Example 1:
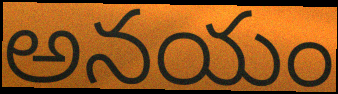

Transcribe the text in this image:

అనయం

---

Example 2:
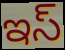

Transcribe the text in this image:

ఇస్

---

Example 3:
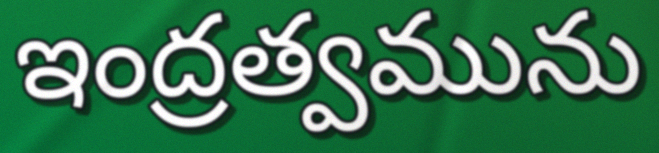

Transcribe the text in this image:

ఇంద్రత్వమును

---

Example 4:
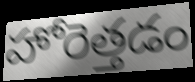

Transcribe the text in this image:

హోరెత్తడం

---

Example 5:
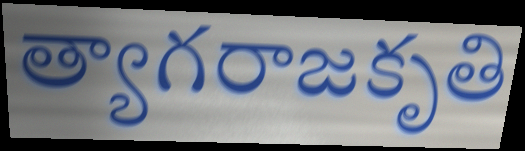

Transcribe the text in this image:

త్యాగరాజకృతి